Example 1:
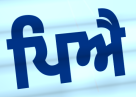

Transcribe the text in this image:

ਪਿਐ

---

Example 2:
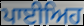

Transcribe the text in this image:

ਪਾਈਅਿਹ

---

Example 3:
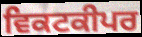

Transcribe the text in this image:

ਵਿਕਟਕੀਪਰ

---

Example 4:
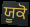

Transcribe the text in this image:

ਯੂਕੋ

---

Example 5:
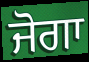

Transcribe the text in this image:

ਜੋਗਾ